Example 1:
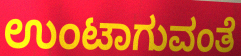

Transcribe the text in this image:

ಉಂಟಾಗುವಂತೆ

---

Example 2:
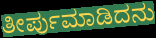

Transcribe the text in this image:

ತೀರ್ಪುಮಾಡಿದನು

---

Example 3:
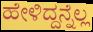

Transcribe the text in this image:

ಹೇಳಿದ್ದನ್ನೆಲ್ಲ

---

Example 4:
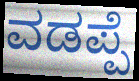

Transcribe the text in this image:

ವಡಪ್ಪೆ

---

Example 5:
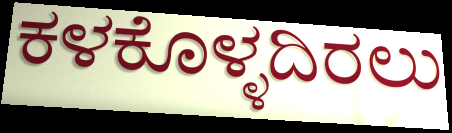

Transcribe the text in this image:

ಕಳಕೊಳ್ಳದಿರಲು